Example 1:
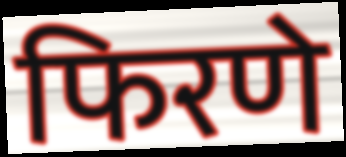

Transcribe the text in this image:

फिरणे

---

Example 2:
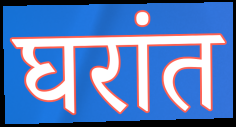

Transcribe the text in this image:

घरांत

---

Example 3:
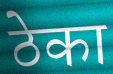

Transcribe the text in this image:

ठेका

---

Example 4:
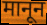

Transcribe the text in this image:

मानून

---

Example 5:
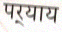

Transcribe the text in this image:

पर्याय